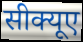
सीक्यूए